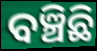
ବଞ୍ଚିଛି